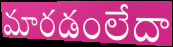
మారడంలేదా